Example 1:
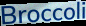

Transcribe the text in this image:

Broccoli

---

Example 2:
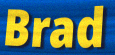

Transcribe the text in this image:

Brad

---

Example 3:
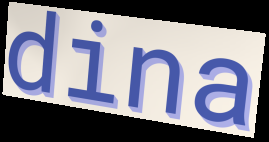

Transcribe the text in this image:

dina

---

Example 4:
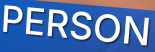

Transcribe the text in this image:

PERSON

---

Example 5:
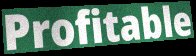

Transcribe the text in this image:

Profitable